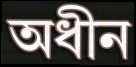
অধীন